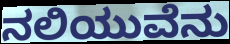
ನಲಿಯುವೆನು